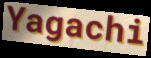
Yagachi